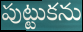
పుట్టుకను